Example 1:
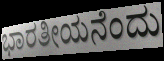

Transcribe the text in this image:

ಭಾರತೀಯನೆಂದು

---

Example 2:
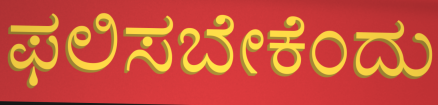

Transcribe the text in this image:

ಫಲಿಸಬೇಕೆಂದು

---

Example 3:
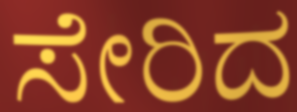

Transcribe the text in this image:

ಸೇರಿದ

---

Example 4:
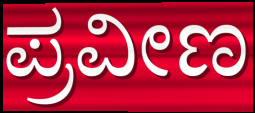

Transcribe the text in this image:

ಪ್ರವೀಣ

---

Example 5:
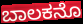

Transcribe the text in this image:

ಬಾಲಕನೊ